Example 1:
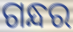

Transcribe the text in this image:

ଗନ୍ଧର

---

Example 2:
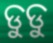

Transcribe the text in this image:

ଡୁଡୁ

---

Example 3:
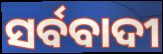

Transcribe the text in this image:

ସର୍ବବାଦୀ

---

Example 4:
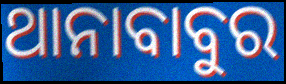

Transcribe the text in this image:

ଥାନାବାବୁର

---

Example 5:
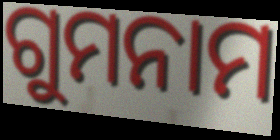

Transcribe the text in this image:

ଗୁମନାମ